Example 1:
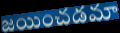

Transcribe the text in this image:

జయించడమా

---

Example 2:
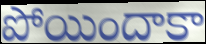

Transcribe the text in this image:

పోయిందాకా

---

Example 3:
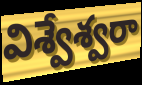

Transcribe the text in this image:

విశ్వేశ్వరా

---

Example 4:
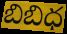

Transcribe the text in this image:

బిబిధ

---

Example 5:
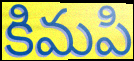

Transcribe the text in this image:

కిమపి